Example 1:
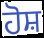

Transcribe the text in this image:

ਹੋਸ਼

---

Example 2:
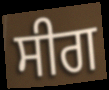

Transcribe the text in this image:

ਸੀਗ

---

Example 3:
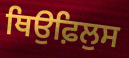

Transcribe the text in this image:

ਥਿਉਫ਼ਿਲੁਸ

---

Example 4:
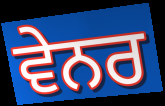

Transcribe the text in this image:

ਵੇਨਰ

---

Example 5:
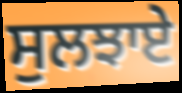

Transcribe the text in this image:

ਸੁਲਝਾਏ